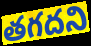
తగదని